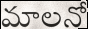
మాలనో